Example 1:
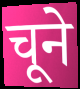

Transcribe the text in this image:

चूने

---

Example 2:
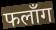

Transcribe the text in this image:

फलाँग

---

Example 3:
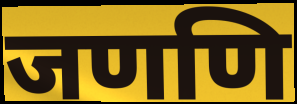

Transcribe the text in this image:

जणणि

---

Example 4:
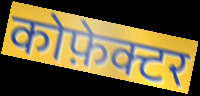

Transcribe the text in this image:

कोफ़ेक्टर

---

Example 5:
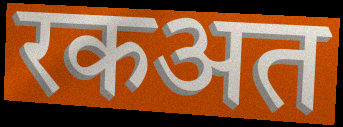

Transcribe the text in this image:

रकअत